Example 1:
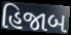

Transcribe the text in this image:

હિજાબ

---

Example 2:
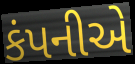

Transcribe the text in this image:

કંપનીએ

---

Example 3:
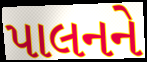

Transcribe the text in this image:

પાલનને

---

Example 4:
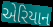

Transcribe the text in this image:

એરિયાન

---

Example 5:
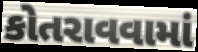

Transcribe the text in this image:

કોતરાવવામાં